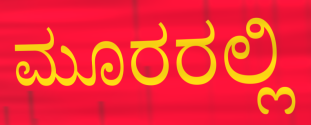
ಮೂರರಲ್ಲಿ